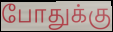
போதுக்கு